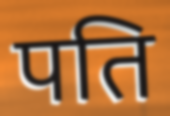
पति